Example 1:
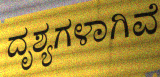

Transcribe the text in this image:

ದೃಶ್ಯಗಳಾಗಿವೆ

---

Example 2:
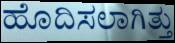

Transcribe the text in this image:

ಹೊದಿಸಲಾಗಿತ್ತು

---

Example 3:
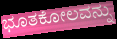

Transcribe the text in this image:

ಭೂತಕೋಲವನ್ನು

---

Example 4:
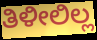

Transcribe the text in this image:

ತಿಳೀಲಿಲ್ಲ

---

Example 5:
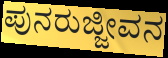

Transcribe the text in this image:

ಪುನರುಜ್ಜೀವನ